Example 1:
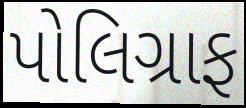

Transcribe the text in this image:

પોલિગ્રાફ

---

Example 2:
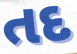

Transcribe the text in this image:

તદ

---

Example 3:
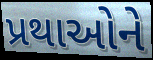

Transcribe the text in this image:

પ્રથાઓને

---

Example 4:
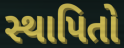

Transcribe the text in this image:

સ્થાપિતો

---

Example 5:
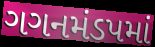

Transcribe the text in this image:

ગગનમંડપમાં